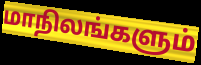
மாநிலங்களும்